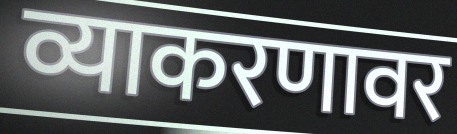
व्याकरणावर